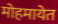
मोहमायेत